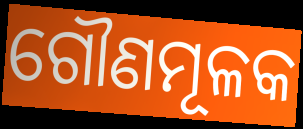
ଗୌଣମୂଳକ